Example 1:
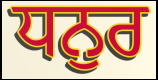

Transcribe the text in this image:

ਧਨੁਰ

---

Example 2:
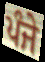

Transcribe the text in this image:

ਪੰਜੇ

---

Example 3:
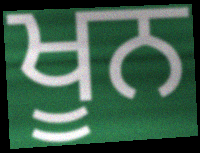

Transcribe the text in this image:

ਖੂਨ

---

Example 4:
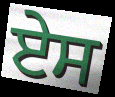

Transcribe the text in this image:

ਏਸ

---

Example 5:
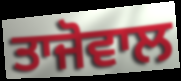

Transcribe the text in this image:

ਤਾਜੋਵਾਲ